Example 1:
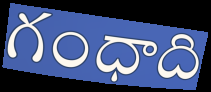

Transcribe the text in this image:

గంధాది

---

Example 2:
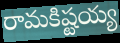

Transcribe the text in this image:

రామకిష్టయ్య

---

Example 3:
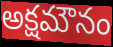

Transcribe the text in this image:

అక్షమౌనం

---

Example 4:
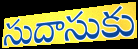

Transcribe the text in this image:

సుదాసుకు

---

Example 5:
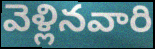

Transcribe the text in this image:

వెళ్లినవారి